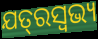
ଯତ୍‌ରସ୍ଵଭ୍ୟ